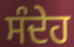
ਸੰਦੇਹ